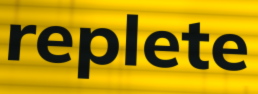
replete